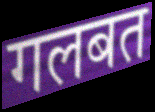
गलबत